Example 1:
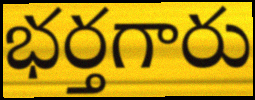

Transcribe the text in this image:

భర్తగారు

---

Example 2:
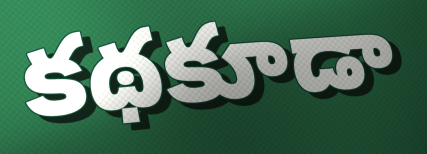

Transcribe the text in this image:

కథకూడా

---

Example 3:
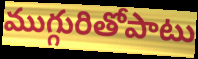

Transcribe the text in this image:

ముగ్గురితోపాటు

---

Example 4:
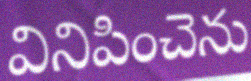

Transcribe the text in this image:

వినిపించెను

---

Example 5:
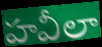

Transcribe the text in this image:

హవీలా